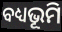
ବଧ୍ୟଭୂମି